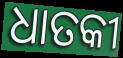
ଧାତକୀ